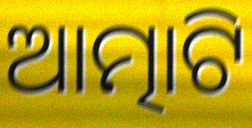
ଆତ୍ମାଟି